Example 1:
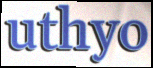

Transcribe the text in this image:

uthyo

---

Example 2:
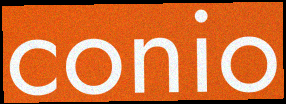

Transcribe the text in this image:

conio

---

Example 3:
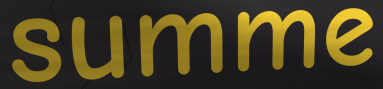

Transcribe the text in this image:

summe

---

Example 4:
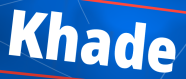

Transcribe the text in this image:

Khade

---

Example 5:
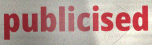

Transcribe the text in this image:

publicised